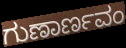
ಗುಣಾರ್ಣವಂ